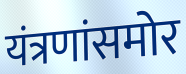
यंत्रणांसमोर